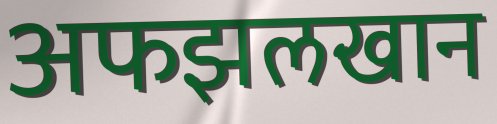
अफझलखान